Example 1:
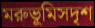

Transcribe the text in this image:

মরুভূমিসদৃশ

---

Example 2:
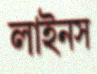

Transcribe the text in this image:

লাইনস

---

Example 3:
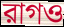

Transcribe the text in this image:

রাগও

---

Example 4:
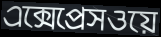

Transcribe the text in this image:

এক্সেপ্রেসওয়ে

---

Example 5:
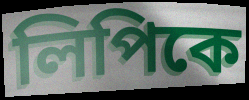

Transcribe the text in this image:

লিপিকে